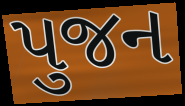
પુજન